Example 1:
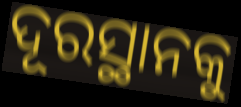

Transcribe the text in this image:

ଦୂରସ୍ଥାନକୁ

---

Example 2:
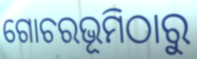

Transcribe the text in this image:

ଗୋଚରଭୂମିଠାରୁ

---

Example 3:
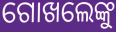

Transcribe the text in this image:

ଗୋଖଲେଙ୍କୁ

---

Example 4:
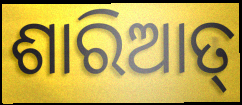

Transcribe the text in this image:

ଶାରିଆତ୍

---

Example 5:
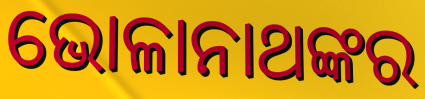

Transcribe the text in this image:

ଭୋଳାନାଥଙ୍କର